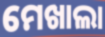
ମେଖାଲା